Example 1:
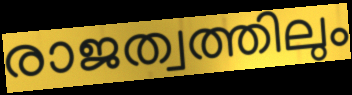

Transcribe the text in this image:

രാജത്വത്തിലും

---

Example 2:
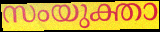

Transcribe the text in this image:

സംയുക്താ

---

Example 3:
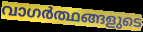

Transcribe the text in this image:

വാഗർത്ഥങ്ങളുടെ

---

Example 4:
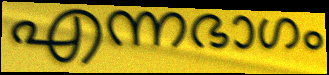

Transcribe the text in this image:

എന്നഭാഗം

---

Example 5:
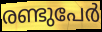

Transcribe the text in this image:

രണ്ടുപേർ